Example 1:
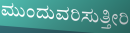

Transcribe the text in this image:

ಮುಂದುವರಿಸುತ್ತೀರಿ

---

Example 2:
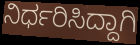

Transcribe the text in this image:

ನಿರ್ಧರಿಸಿದ್ದಾಗಿ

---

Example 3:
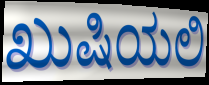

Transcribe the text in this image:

ಖುಷಿಯಲಿ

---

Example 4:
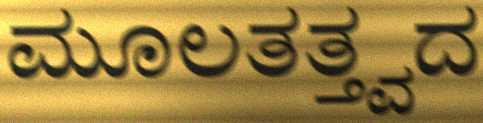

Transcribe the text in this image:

ಮೂಲತತ್ತ್ವದ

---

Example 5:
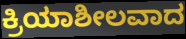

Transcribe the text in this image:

ಕ್ರಿಯಾಶೀಲವಾದ